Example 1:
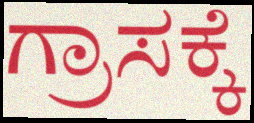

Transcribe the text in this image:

ಗ್ರಾಸಕ್ಕೆ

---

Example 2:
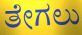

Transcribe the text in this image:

ತೇಗಲು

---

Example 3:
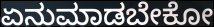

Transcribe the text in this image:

ಏನುಮಾಡಬೇಕೋ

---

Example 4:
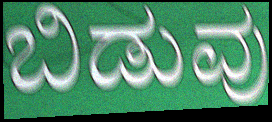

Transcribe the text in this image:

ಬಿಡುವು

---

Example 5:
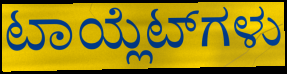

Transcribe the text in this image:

ಟಾಯ್ಲೆಟ್‌ಗಳು